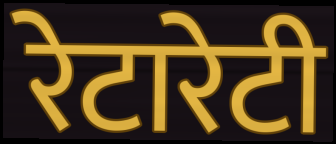
रेटारेटी